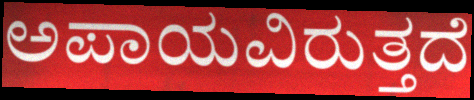
ಅಪಾಯವಿರುತ್ತದೆ